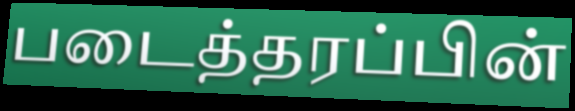
படைத்தரப்பின்